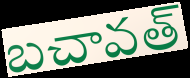
బచావత్